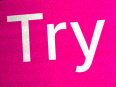
Try